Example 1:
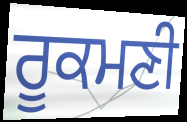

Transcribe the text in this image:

ਰੂਕਮਣੀ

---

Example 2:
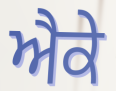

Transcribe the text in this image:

ਐਕੇ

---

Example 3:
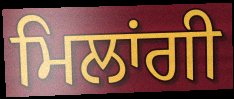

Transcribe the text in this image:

ਮਿਲਾਂਗੀ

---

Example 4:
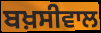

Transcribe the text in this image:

ਬਖ਼ਸੀਵਾਲ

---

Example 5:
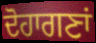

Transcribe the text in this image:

ਦੋਹਾਗਣਾਂ